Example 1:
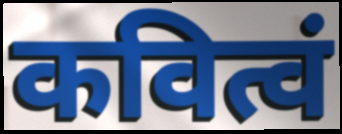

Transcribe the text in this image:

कवित्वं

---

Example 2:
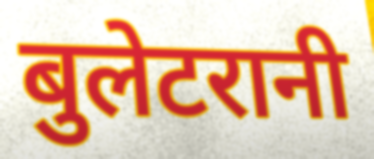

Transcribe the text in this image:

बुलेटरानी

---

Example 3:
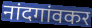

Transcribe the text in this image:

नांदगांवकर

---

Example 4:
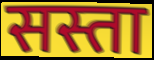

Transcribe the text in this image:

सस्‍ता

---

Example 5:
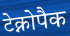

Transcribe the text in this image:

टेक्नोपैक